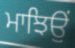
ਮਾਝਿਉਂ